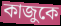
কাজুকে